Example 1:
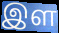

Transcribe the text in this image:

இள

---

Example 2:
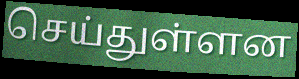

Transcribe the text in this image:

செய்துள்ளன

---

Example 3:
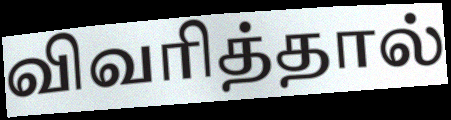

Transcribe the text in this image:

விவரித்தால்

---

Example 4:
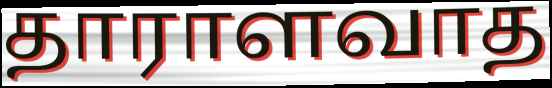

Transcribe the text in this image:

தாராளவாத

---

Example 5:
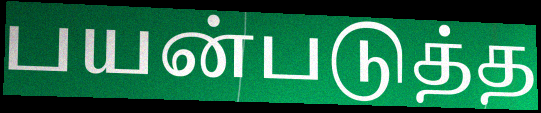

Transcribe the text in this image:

பயன்படுத்த